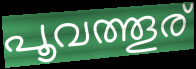
പൂവത്തൂര്